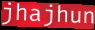
jhajhun